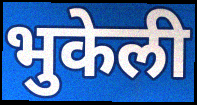
भुकेली